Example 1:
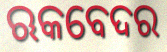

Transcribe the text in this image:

ଋକବେଦର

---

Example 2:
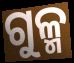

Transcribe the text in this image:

ଗୁଳ୍ମ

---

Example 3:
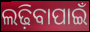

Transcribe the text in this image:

ଲଢ଼ିବାପାଇଁ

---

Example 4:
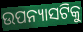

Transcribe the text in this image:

ଉପନ୍ୟାସଟିକୁ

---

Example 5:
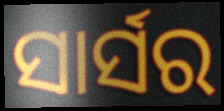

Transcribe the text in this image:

ସାର୍ସର